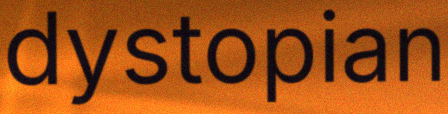
dystopian